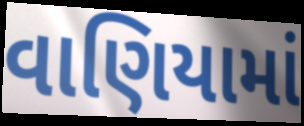
વાણિયામાં